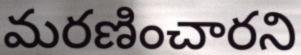
మరణించారని